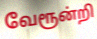
வேரூன்றி